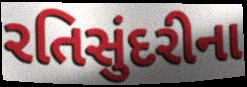
રતિસુંદરીના